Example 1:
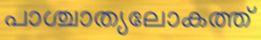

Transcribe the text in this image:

പാശ്ചാത്യലോകത്ത്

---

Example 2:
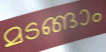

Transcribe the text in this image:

മടങ്ങാം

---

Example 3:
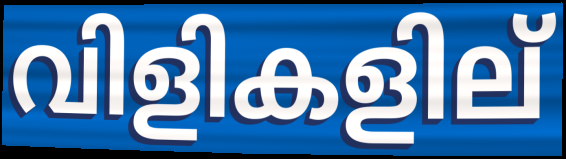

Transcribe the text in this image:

വിളികളില്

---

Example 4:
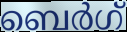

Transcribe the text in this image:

ബെർഗ്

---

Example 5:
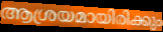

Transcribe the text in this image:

ആശ്രയമായിരിക്കും